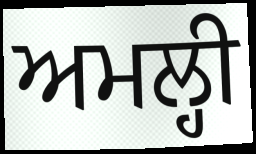
ਅਮਲ੍ਹੀ